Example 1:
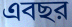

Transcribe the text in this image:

এবছর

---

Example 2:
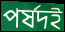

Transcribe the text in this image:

পর্ষদই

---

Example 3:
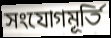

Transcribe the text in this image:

সংযোগমূর্তি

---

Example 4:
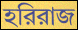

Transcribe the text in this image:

হরিরাজ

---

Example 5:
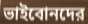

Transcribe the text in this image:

ভাইবোনদের